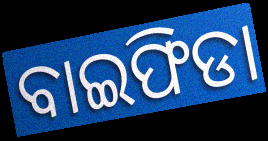
ବାଇଫିଡା